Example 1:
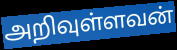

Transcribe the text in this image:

அறிவுள்ளவன்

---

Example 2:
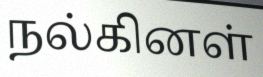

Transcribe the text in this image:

நல்கினள்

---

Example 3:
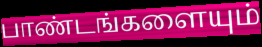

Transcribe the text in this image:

பாண்டங்களையும்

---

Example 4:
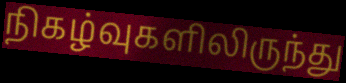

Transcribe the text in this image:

நிகழ்வுகளிலிருந்து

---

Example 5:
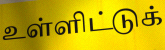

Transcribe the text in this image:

உள்ளிட்டுக்